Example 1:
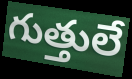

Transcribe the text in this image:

గుత్తులే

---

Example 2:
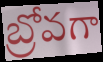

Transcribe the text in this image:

బ్రోవగా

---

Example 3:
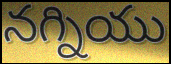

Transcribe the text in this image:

నగ్నియు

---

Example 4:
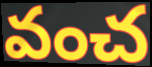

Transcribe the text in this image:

వంచ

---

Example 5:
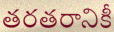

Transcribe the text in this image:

తరతరానికీ